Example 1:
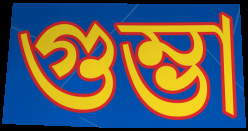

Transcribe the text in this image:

গুম্ভা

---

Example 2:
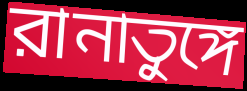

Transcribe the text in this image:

রানাতুঙ্গে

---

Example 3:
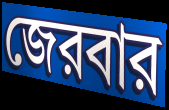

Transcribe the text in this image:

জেরবার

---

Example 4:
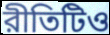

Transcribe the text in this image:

রীতিটিও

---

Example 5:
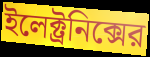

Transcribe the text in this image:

ইলেক্ট্রনিক্সের